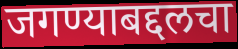
जगण्याबद्दलचा